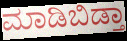
ಮಾಡಿಬಿಡ್ತಾ